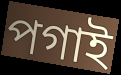
পগাই